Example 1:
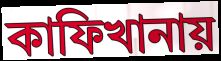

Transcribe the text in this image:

কাফিখানায়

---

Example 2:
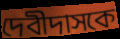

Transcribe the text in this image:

দেবীদাসকে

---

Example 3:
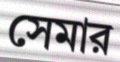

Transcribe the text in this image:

সেমার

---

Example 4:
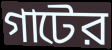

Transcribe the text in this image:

গাটের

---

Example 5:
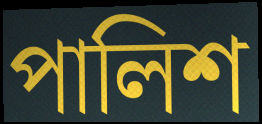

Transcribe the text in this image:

পালিশ